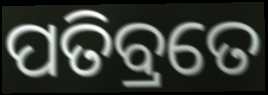
ପତିବ୍ରତେ